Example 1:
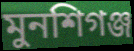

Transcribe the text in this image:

মুনশিগঞ্জ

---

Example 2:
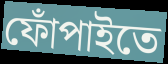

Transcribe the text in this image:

ফোঁপাইতে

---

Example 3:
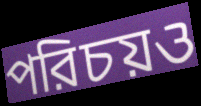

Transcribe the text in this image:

পরিচয়ও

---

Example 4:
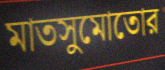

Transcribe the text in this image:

মাতসুমোতোর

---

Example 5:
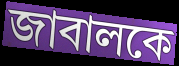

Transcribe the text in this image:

জাবালকে